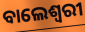
ବାଲେଶ୍ଵରୀ